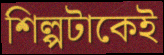
শিল্পটাকেই